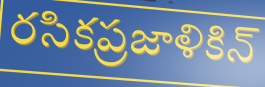
రసికప్రజాళికిన్